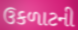
ઉકળાટની